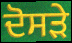
ਦੋਸੜੇ